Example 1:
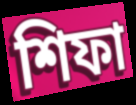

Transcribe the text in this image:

শিফা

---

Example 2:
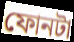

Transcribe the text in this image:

ফোনটা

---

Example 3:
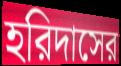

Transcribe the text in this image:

হরিদাসের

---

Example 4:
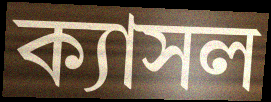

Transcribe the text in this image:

ক্যাসল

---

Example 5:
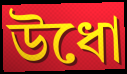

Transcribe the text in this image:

উধো